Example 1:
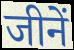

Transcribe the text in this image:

जीनें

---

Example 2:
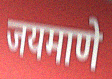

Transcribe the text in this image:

जयमाणे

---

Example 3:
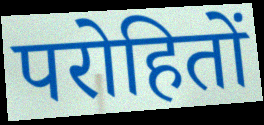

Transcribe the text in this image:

परोहितों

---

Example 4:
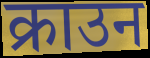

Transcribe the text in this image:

क्राउन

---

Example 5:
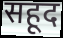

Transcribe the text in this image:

सहूद